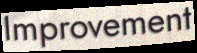
Improvement